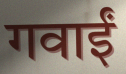
गवाईं